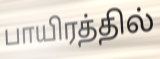
பாயிரத்தில்